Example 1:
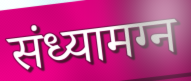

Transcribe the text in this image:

संध्यामग्न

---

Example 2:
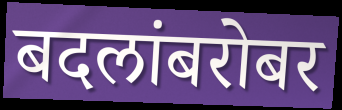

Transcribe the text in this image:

बदलांबरोबर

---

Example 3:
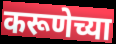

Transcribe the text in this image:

करूणेच्या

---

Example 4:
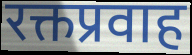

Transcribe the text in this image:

रक्तप्रवाह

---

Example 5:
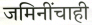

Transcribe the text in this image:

जमिनींचाही